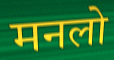
मनलो